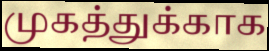
முகத்துக்காக